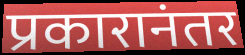
प्रकारानंतर